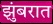
झुंबरात